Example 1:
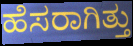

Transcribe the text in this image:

ಹೆಸರಾಗಿತ್ತು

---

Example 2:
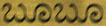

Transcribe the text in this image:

ಬೂಬೂ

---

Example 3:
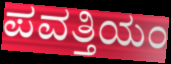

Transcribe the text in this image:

ಪವತ್ತಿಯಂ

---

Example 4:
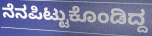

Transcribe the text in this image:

ನೆನಪಿಟ್ಟುಕೊಂಡಿದ್ದ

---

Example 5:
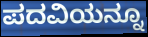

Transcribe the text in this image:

ಪದವಿಯನ್ನೂ